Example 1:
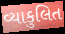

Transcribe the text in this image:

વ્યાકુલિત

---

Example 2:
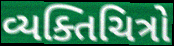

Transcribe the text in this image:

વ્યક્તિચિત્રો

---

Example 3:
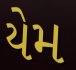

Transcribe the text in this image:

યેમ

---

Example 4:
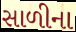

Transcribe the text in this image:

સાળીના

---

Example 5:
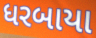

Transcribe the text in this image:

ધરબાયા